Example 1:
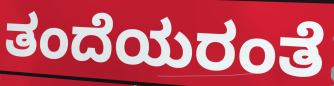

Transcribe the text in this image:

ತಂದೆಯರಂತೆ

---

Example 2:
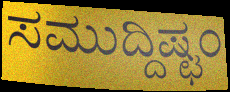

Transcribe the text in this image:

ಸಮುದ್ದಿಷ್ಟಂ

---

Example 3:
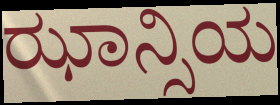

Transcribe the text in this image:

ಝಾನ್ಸಿಯ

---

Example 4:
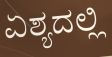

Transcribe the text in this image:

ಏಶ್ಯದಲ್ಲಿ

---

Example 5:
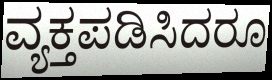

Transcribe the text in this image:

ವ್ಯಕ್ತಪಡಿಸಿದರೂ